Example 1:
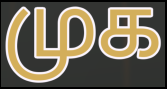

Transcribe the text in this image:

முக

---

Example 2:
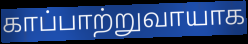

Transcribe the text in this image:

காப்பாற்றுவாயாக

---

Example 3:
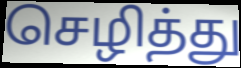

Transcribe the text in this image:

செழித்து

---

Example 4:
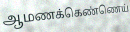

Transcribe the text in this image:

ஆமணக்கெண்ணெய்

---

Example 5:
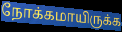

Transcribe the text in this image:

நோக்கமாயிருக்க